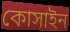
কোসাইন